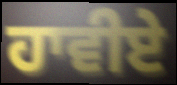
ਹਾਵੀਏ